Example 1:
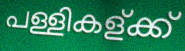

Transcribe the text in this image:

പള്ളികള്ക്ക്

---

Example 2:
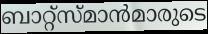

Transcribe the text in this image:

ബാറ്റ്സ്മാൻമാരുടെ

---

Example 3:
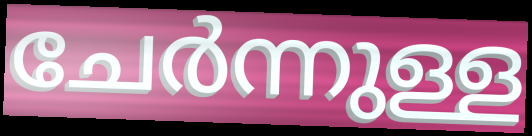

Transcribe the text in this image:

ചേർന്നുള്ള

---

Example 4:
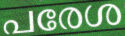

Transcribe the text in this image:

പരേശ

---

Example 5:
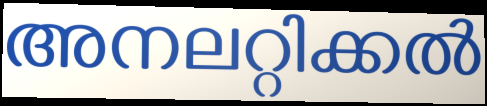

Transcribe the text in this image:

അനലറ്റിക്കൽ